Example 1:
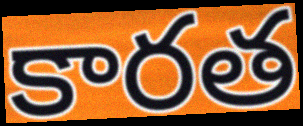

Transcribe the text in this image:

కారత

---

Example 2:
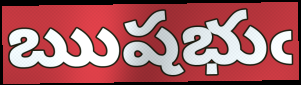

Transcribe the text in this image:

ఋషభుఁ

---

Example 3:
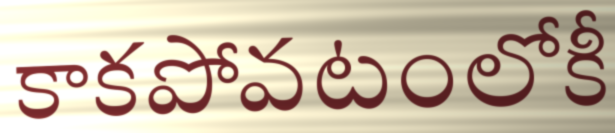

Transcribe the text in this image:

కాకపోవటంలోకీ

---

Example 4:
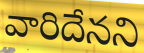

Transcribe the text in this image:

వారిదేనని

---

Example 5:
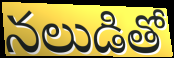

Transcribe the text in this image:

నలుడితో